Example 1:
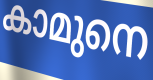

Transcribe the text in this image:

കാമുനെ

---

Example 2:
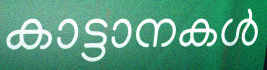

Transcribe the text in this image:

കാട്ടാനകൾ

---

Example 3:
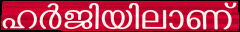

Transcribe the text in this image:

ഹർജിയിലാണ്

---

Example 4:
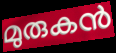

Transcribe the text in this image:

മുരുകൻ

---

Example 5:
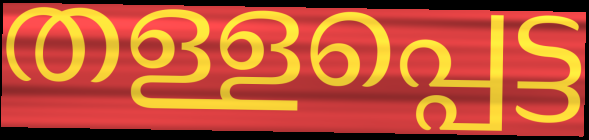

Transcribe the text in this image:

തള്ളപ്പെട്ട